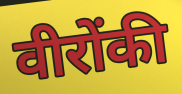
वीरोंकी